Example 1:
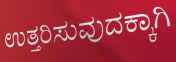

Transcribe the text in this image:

ಉತ್ತರಿಸುವುದಕ್ಕಾಗಿ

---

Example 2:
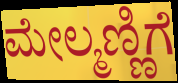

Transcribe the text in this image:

ಮೇಲ್ಮಣ್ಣಿಗೆ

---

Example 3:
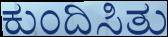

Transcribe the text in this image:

ಕುಂದಿಸಿತು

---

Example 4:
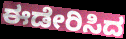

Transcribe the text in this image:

ಈಡೇರಿಸಿದ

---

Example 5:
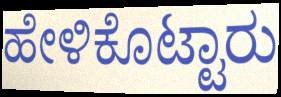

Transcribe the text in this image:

ಹೇಳಿಕೊಟ್ಟಾರು